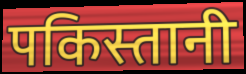
पकिस्तानी